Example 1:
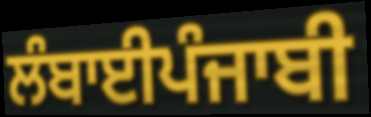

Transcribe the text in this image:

ਲੰਬਾਈਪੰਜਾਬੀ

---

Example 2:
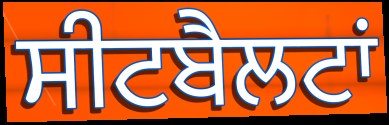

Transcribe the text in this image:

ਸੀਟਬੈਲਟਾਂ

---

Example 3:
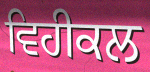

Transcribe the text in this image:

ਵਿਹੀਕਲ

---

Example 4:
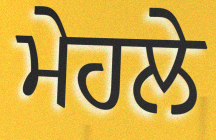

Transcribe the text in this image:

ਮੇਹਲੇ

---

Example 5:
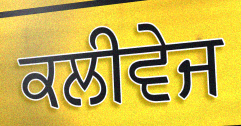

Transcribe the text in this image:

ਕਲੀਵੇਜ